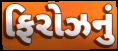
ફિરોઝનું